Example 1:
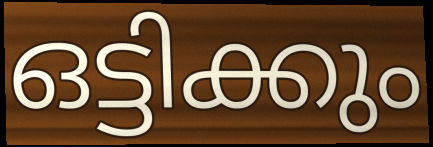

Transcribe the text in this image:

ഒട്ടിക്കും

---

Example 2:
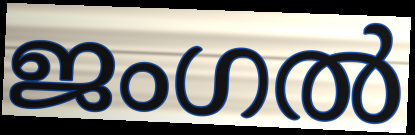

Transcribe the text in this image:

ജംഗൽ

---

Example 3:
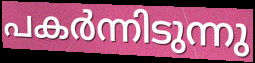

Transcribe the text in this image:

പകർന്നിടുന്നു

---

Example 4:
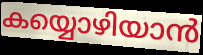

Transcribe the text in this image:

കയ്യൊഴിയാൻ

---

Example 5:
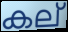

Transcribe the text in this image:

കല്